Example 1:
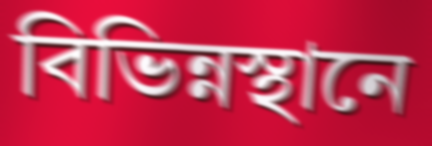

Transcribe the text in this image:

বিভিন্নস্থানে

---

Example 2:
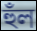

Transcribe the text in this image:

হুঁল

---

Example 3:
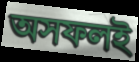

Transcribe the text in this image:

অসফলই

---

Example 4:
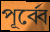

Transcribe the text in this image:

পূর্ব্বে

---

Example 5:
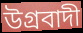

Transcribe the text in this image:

উগ্রবাদী